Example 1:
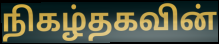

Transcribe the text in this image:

நிகழ்தகவின்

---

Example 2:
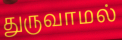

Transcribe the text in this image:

துருவாமல்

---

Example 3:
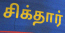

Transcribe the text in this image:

சிக்தார்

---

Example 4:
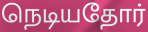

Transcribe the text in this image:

நெடியதோர்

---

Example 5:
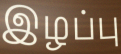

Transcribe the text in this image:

இழப்பு